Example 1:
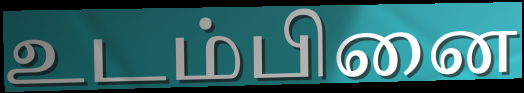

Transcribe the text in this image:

உடம்பினை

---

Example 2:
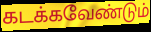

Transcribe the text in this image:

கடக்கவேண்டும்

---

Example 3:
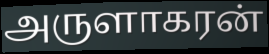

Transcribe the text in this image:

அருளாகரன்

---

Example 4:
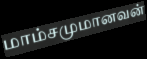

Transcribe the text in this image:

மாம்சமுமானவன்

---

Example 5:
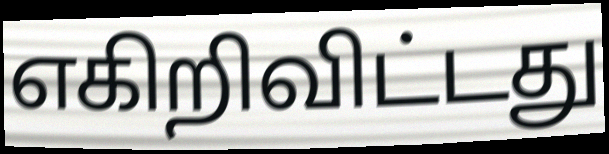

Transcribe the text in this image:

எகிறிவிட்டது